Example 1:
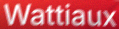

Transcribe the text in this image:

Wattiaux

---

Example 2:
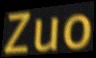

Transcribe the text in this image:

Zuo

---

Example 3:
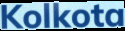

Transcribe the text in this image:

Kolkota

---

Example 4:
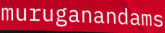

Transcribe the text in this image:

muruganandams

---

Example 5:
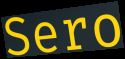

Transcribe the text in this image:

Sero